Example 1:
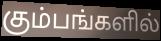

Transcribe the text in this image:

கும்பங்களில்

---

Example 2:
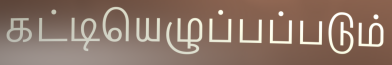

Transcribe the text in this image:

கட்டியெழுப்பப்படும்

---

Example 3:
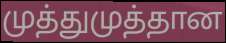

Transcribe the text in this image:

முத்துமுத்தான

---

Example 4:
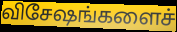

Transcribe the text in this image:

விசேஷங்களைச்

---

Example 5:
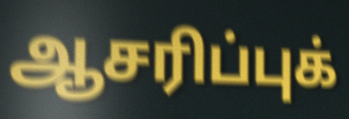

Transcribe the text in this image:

ஆசரிப்புக்